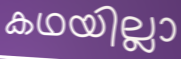
കഥയില്ലാ